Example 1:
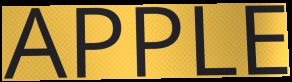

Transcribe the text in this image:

APPLE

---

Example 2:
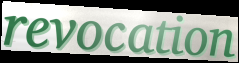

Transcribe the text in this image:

revocation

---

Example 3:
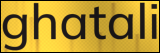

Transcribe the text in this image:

ghatali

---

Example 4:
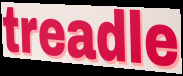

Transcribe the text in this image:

treadle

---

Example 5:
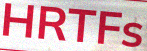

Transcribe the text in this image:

HRTFs